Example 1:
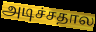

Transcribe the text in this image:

அடிச்சதால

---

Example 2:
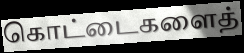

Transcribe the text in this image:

கொட்டைகளைத்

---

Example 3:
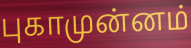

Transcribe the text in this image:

புகாமுன்னம்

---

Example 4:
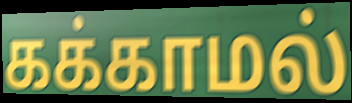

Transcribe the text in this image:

கக்காமல்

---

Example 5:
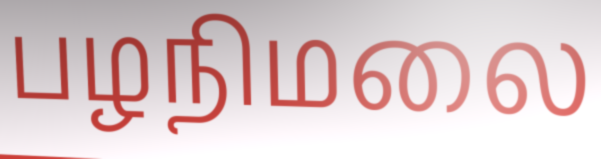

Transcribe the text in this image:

பழநிமலை